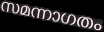
സമന്നാഗതം